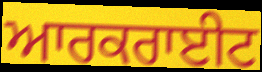
ਆਰਕਰਾਈਟ